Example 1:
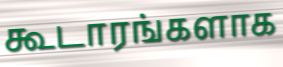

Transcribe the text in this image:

கூடாரங்களாக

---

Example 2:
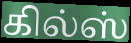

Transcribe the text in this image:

கில்ஸ்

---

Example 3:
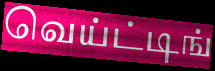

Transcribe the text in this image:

வெய்ட்டிங்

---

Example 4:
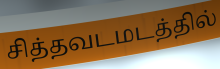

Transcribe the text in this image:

சித்தவடமடத்தில்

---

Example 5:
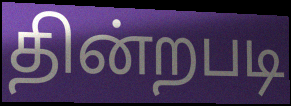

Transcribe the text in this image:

தின்றபடி